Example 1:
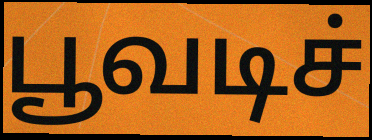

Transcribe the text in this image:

பூவடிச்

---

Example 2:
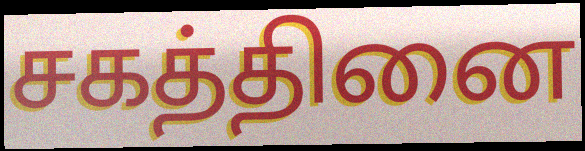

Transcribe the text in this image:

சகத்தினை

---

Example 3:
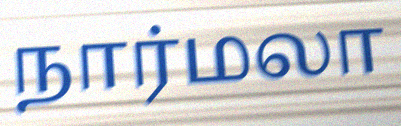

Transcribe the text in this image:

நார்மலா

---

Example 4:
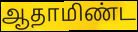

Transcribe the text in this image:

ஆதாமிண்ட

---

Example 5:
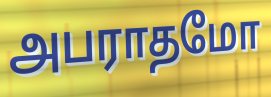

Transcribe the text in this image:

அபராதமோ